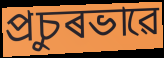
প্ৰচুৰভাৱে